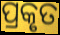
ପ୍ରକୃତ